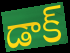
డాక్